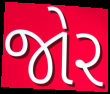
જોર